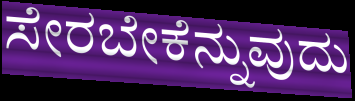
ಸೇರಬೇಕೆನ್ನುವುದು